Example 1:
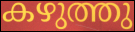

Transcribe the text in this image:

കഴുത്തു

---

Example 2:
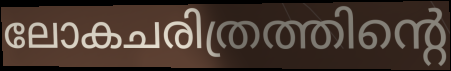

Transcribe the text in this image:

ലോകചരിത്രത്തിന്റെ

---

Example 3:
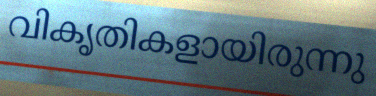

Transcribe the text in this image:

വികൃതികളായിരുന്നു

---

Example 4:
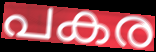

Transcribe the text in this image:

പകര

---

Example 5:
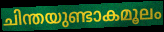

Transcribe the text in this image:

ചിന്തയുണ്ടാകമൂലം